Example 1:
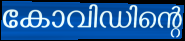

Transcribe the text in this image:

കോവിഡിന്റെ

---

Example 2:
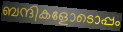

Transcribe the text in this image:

ബന്ദികളോടൊപ്പം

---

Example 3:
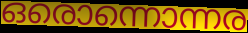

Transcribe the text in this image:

ഒരൊന്നൊന്നര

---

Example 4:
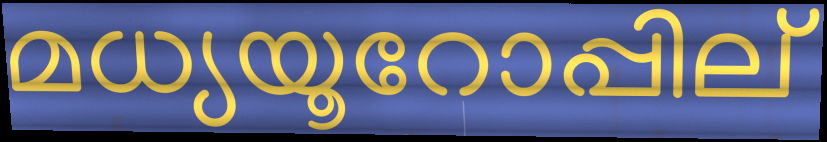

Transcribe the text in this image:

മധ്യയൂറോപ്പില്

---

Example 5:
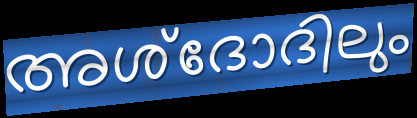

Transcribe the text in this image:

അശ്ദോദിലും